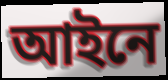
আইনে